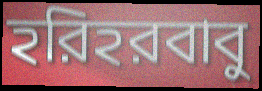
হরিহরবাবু